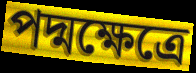
পদ্মক্ষেত্রে